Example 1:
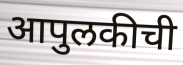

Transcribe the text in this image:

आपुलकीची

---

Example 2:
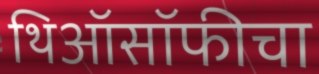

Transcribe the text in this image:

थिऑसॉफीचा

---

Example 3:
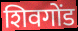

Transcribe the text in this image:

शिवगोंड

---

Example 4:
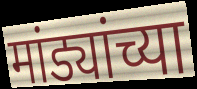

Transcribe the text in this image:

मांड्यांच्या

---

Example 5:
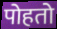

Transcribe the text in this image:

पोहतो